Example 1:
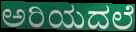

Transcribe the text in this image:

ಅರಿಯದಲೆ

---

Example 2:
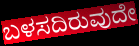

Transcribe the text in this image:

ಬಳಸದಿರುವುದೇ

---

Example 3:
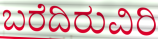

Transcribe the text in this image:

ಬರೆದಿರುವಿರಿ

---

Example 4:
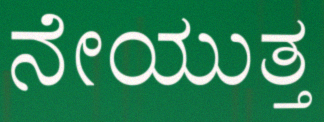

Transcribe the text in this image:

ನೇಯುತ್ತ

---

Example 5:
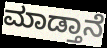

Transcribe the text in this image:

ಮಾಡ್ತಾನೆ